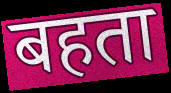
बहता